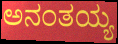
ಅನಂತಯ್ಯ